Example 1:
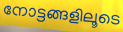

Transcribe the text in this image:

നോട്ടങ്ങളിലൂടെ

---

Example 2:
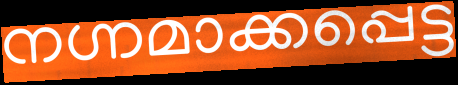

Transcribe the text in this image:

നഗ്നമാക്കപ്പെട്ട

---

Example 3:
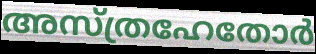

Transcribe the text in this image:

അസ്ത്രഹേതോർ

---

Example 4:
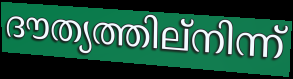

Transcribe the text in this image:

ദൗത്യത്തില്നിന്ന്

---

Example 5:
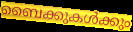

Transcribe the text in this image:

ബൈക്കുകൾക്കും